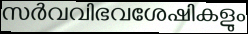
സർവവിഭവശേഷികളും